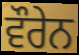
ਵੌਰੇਨ